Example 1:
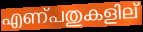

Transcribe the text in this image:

എണ്പതുകളില്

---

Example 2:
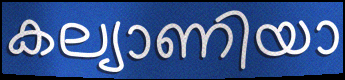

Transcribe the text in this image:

കല്യാണിയാ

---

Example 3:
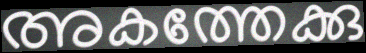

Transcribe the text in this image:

അകത്തേക്കു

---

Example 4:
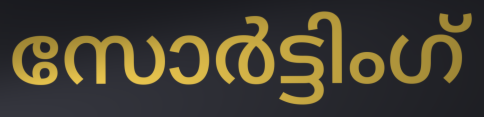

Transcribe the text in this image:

സോർട്ടിംഗ്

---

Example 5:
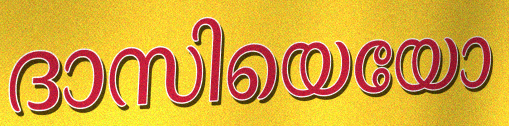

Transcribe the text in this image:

ദാസിയെയോ